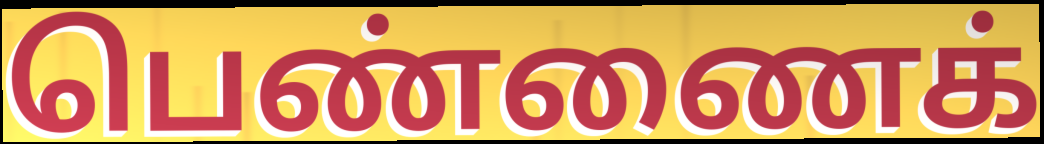
பெண்ணைக்